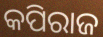
କପିରାଜ